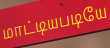
மாட்டியபடியே